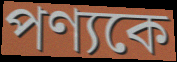
পণ্যকে